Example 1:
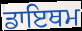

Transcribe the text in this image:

ਡਾਇਥਮ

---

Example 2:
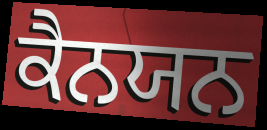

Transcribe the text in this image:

ਕੈਨਯਨ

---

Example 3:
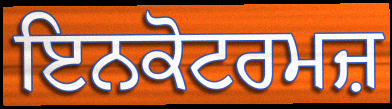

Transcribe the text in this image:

ਇਨਕੋਟਰਮਜ਼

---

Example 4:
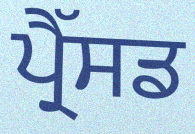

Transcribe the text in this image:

ਪ੍ਰੈੱਸਡ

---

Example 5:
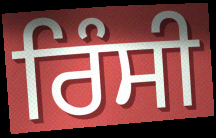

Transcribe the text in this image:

ਰਿੰਸੀ